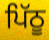
ਪਿੱਠੂ